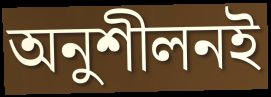
অনুশীলনই